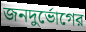
জনদুর্ভোগের